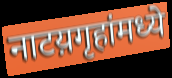
नाटय़गृहांमध्ये